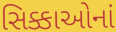
સિક્કાઓનાં